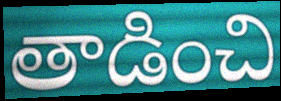
తాడించి